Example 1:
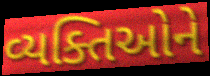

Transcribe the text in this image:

વ્યક્તિઓને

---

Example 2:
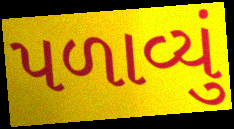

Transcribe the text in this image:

પળાવ્યું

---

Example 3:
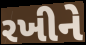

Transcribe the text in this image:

રખીને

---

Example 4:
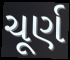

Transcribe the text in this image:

ચૂર્ણ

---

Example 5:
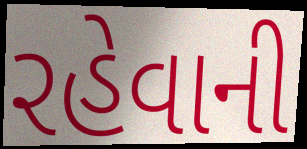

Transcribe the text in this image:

રહેવાની